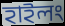
হাইলং